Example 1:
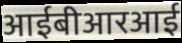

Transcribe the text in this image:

आईबीआरआई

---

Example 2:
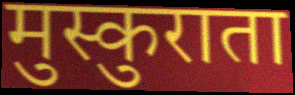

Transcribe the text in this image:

मुस्कुराता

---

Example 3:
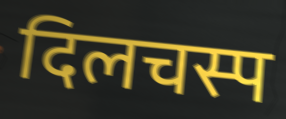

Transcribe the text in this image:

दिलचस्प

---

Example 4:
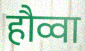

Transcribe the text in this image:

हौव्वा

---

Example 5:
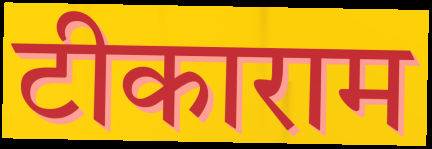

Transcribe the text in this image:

टीकाराम